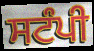
ਸਟੰਪੀ